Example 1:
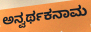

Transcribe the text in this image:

ಅನ್ವರ್ಥಕನಾಮ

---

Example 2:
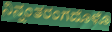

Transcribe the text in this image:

ನಿನ್ನಂತರಂಗದೊಳೊ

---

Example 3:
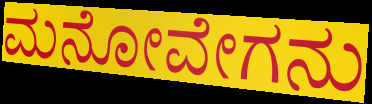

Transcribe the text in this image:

ಮನೋವೇಗನು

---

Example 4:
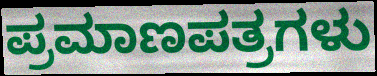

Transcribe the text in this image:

ಪ್ರಮಾಣಪತ್ರಗಳು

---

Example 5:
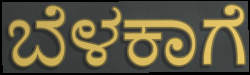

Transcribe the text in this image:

ಬೆಳಕಾಗೆ